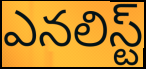
ఎనలిస్ట్